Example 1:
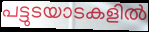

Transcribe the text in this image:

പട്ടുടയാടകളിൽ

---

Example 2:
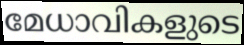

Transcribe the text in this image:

മേധാവികളുടെ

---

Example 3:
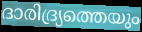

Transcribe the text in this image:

ദാരിദ്ര്യത്തെയും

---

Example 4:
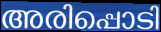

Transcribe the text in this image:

അരിപ്പൊടി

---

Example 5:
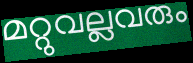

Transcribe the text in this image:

മറ്റുവല്ലവരും